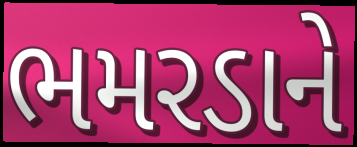
ભમરડાને